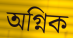
অগ্নিক